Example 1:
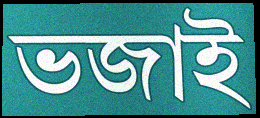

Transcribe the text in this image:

ভজাই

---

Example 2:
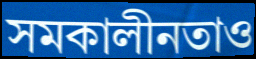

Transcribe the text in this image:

সমকালীনতাও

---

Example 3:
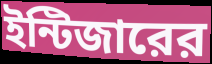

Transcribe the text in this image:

ইন্টিজারের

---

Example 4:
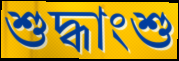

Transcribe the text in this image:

শুদ্ধাংশু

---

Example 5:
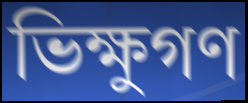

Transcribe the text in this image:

ভিক্ষুগণ